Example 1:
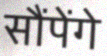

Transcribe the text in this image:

सौंपेंगे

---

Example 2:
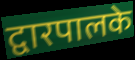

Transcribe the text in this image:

द्वारपालके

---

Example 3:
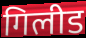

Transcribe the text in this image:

गिलीड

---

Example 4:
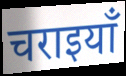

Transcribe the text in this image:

चराइयाँ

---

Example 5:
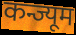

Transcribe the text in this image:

कन्ज्यूम